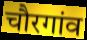
चौरगांव